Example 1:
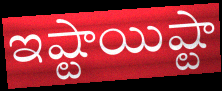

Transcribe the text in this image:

ఇష్టాయిష్టా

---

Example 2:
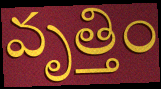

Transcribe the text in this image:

వృత్తిం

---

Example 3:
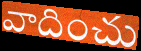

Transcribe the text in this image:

వాదించు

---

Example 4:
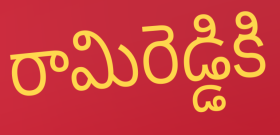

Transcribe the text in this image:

రామిరెడ్డికి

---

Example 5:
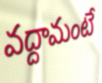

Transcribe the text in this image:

వద్దామంటే